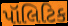
પૉલિટિક